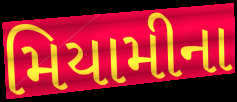
મિયામીના